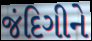
જંદિગીને